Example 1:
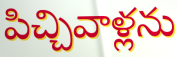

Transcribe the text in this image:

పిచ్చివాళ్లను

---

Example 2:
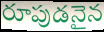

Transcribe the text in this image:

రూపుడనైన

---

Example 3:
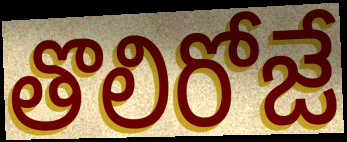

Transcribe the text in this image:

తొలిరోజే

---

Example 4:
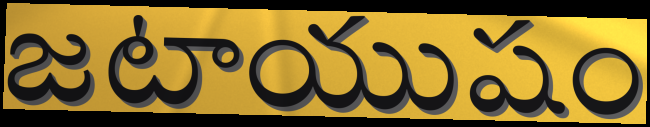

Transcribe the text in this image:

జటాయుషం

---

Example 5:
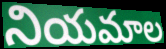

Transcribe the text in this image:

నియమాల